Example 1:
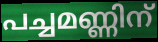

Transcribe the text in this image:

പച്ചമണ്ണിന്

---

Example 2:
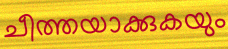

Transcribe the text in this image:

ചീത്തയാക്കുകയും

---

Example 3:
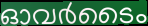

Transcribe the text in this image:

ഓവർടൈം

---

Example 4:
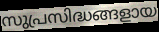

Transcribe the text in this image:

സുപ്രസിദ്ധങ്ങളായ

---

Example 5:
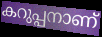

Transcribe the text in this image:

കറുപ്പനാണ്